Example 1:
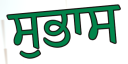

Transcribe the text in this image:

ਸੁਭਾਸ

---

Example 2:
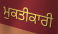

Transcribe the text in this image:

ਮੁਕਤੀਕਾਰੀ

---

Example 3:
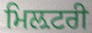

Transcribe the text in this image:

ਮਿਲ਼ਟਰੀ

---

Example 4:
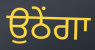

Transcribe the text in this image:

ਉਠੇਂਗਾ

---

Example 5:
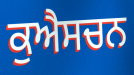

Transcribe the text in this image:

ਕੁਐਸਚਨ